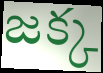
జక్క